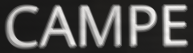
CAMPE